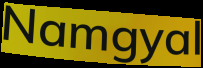
Namgyal